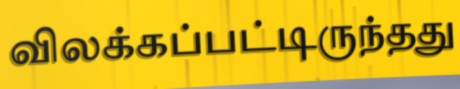
விலக்கப்பட்டிருந்தது